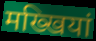
मख्खियां